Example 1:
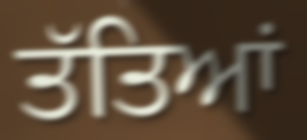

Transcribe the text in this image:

ਤੱਤਿਆਂ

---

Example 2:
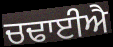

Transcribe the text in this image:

ਚਢਾਈਐ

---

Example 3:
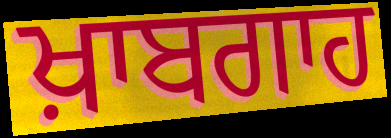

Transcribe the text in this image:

ਖ਼ਾਬਗਾਹ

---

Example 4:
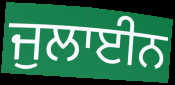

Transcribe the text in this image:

ਜੁਲਾਈਨ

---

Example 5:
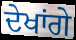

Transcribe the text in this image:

ਦੇਖਾਂਗੇ